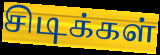
சிடிக்கள்